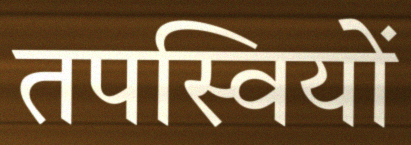
तपस्वियों